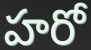
హరో